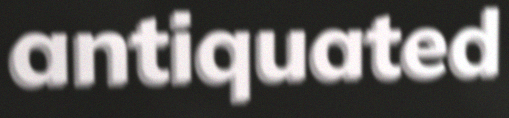
antiquated